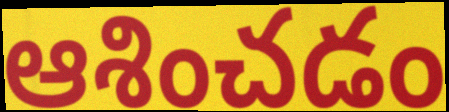
ఆశించడం